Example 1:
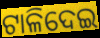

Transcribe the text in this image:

ଟାଳିଦେଇ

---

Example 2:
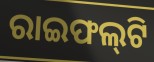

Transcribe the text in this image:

ରାଇଫଲ୍‍ଟି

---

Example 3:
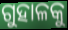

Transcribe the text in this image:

ଗୁହାଳକୁ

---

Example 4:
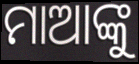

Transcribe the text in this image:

ମାଆଙ୍କୁ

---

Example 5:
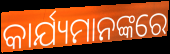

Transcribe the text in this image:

କାର୍ଯ୍ୟମାନଙ୍କରେ